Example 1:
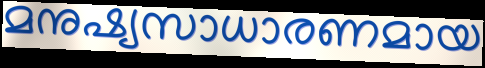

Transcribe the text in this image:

മനുഷ്യസാധാരണമായ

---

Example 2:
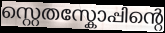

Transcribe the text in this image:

സ്റ്റെതസ്കോപ്പിന്റെ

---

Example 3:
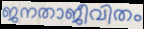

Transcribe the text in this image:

ജനതാജീവിതം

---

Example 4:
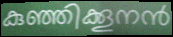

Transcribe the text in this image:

കുഞ്ഞിക്കൂനൻ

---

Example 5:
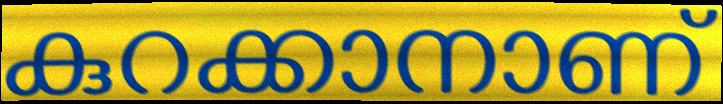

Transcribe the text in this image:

കുറക്കാനാണ്